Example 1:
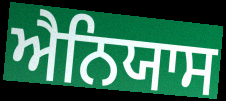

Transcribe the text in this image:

ਐਨਿਯਾਸ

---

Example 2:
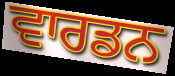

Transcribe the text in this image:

ਵਾਰਡਨ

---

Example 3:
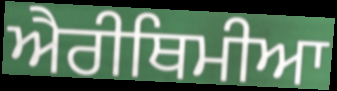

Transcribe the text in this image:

ਐਰੀਥਿਮੀਆ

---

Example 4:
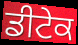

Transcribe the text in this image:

ਡੀਟੇਕ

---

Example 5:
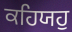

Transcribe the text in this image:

ਕਹਿਯਹੁ